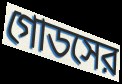
গোডসের